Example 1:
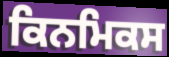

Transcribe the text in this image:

ਕਿਨਮਿਕਸ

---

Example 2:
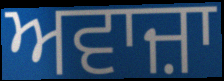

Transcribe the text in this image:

ਅਵਾਜ਼ਾ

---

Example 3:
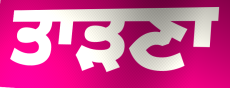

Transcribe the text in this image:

ਤਾੜਣਾ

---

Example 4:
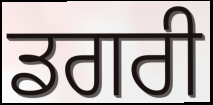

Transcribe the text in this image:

ਡਗਰੀ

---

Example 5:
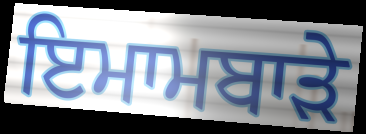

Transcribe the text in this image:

ਇਮਾਮਬਾੜੇ